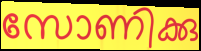
സോണിക്കു